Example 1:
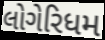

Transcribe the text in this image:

લોગેરિધમ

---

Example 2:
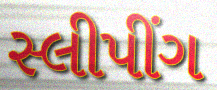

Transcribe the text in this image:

સ્લીપીંગ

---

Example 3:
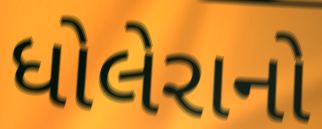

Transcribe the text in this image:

ધોલેરાનો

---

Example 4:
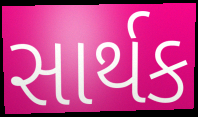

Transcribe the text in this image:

સાર્થક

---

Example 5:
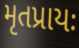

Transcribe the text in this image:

મૃતપ્રાયઃ